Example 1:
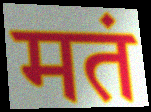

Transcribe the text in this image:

मतं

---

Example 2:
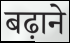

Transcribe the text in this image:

बढ़ाने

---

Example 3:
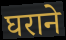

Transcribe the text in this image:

घराने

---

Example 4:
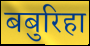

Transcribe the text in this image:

बबुरिहा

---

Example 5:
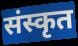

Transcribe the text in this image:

संस्कृत